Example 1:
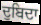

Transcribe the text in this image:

ਦੁਬਿਦਾ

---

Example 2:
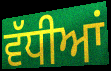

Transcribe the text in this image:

ਵੱਧੀਆਂ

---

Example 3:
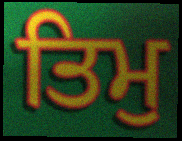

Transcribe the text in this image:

ਤਿਮੁ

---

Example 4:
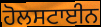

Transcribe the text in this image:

ਹੋਲਸਟਾਈਨ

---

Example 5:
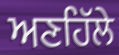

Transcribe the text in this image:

ਅਣਹਿੱਲੇ